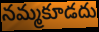
నమ్మకూడదు